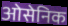
ओसेनिक